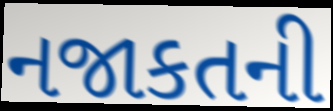
નજાકતની